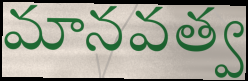
మానవత్వ